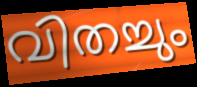
വിതച്ചും